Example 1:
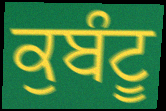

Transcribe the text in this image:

ਕੁਬੰਟੂ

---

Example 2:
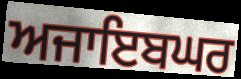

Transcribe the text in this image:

ਅਜਾਇਬਘਰ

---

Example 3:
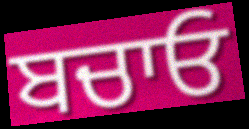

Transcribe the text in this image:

ਬਚਾਓ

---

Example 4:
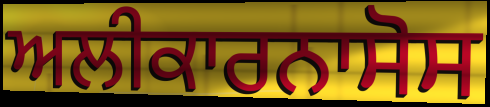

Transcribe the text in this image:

ਅਲੀਕਾਰਨਾਸੋਸ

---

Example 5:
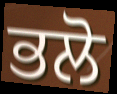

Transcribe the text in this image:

ਭਲੋ